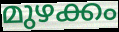
മുഴക്കം